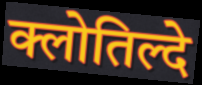
क्लोतिल्दे